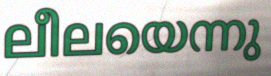
ലീലയെന്നു